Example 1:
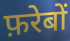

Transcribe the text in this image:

फ़रेबों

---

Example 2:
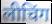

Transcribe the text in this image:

लीचिंग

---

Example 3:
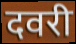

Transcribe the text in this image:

दवरी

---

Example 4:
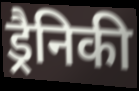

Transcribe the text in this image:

ड्रैनिकी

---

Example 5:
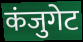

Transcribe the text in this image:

कंजुगेट